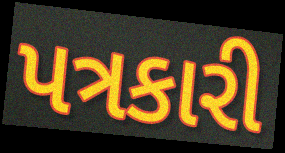
પત્રકારી